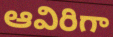
ఆవిరిగా